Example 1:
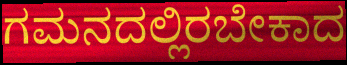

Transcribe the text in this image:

ಗಮನದಲ್ಲಿರಬೇಕಾದ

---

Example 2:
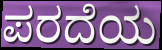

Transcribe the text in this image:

ಪರದೆಯ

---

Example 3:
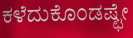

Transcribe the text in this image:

ಕಳೆದುಕೊಂಡಷ್ಟೇ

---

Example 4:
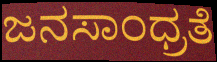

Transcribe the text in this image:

ಜನಸಾಂಧ್ರತೆ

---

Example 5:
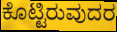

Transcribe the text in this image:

ಕೊಟ್ಟಿರುವುದರ